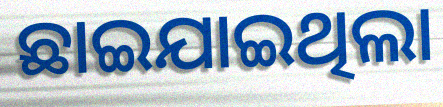
ଛାଇଯାଇଥିଲା